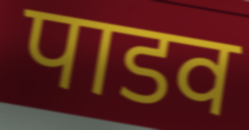
पाडव